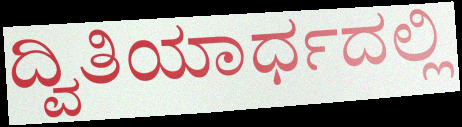
ದ್ವಿತಿಯಾರ್ಧದಲ್ಲಿ